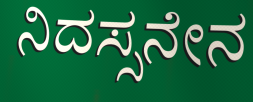
ನಿದಸ್ಸನೇನ